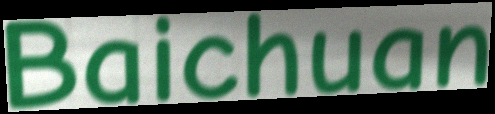
Baichuan